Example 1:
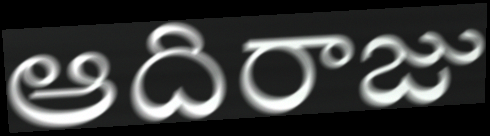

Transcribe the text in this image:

ఆదిరాజు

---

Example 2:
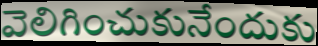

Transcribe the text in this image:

వెలిగించుకునేందుకు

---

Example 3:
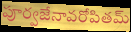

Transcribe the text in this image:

పూర్వజేనావరోపితమ్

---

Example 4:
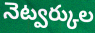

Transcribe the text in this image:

నెట్వర్కుల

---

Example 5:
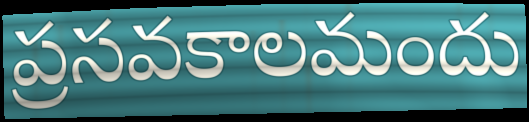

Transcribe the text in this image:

ప్రసవకాలమందు